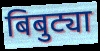
बिबुट्या